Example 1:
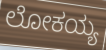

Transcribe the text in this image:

ಲೋಕಯ್ಯ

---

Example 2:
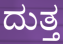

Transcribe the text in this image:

ದುತ್ತ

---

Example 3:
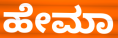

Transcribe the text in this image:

ಹೇಮಾ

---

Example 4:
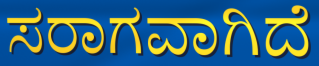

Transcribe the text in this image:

ಸರಾಗವಾಗಿದೆ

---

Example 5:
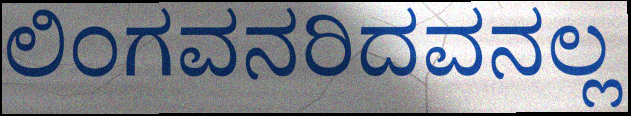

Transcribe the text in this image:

ಲಿಂಗವನರಿದವನಲ್ಲ